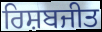
ਰਿਸ਼ਬਜੀਤ